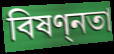
বিষণ্নতা